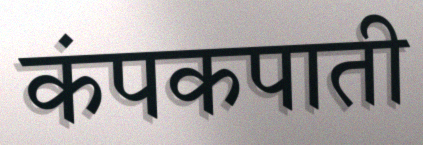
कंपकपाती